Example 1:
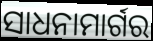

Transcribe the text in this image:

ସାଧନାମାର୍ଗର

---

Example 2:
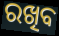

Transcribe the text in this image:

ରଖିବ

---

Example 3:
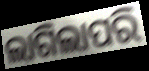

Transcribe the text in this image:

ଲାଗିଲାପରି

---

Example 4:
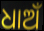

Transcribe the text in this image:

ଧାଅଁ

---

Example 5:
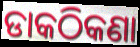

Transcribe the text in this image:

ଡାକଠିକଣା